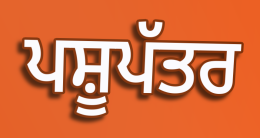
ਪਸ਼ੂਪੱਤਰ